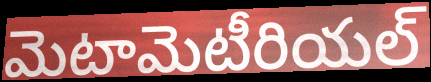
మెటామెటీరియల్